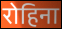
रोहिना